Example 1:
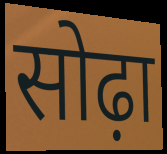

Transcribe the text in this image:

सोढ़ा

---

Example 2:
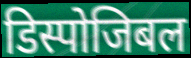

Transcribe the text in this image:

डिस्पोजिबल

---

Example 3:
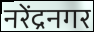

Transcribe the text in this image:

नरेंद्रनगर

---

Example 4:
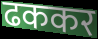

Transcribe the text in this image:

ढककर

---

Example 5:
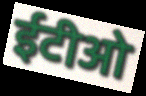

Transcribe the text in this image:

ईटीओ